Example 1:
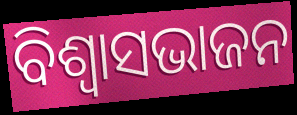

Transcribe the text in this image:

ବିଶ୍ଵାସଭାଜନ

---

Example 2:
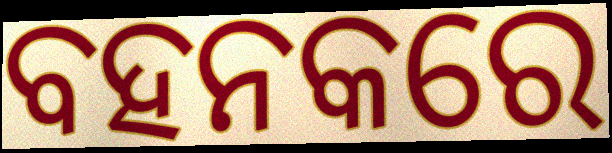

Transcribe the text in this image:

ବହନକରେ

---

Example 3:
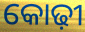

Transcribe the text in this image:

କୋଢ଼ୀ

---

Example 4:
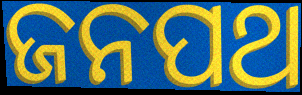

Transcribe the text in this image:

ଜନପଥ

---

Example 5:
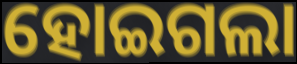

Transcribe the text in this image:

ହୋଇଗଲା